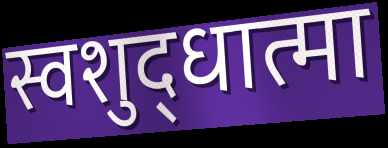
स्वशुद्धात्मा